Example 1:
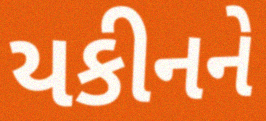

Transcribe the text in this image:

યકીનને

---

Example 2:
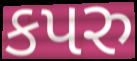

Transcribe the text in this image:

કપરુ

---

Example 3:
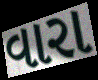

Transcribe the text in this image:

વારા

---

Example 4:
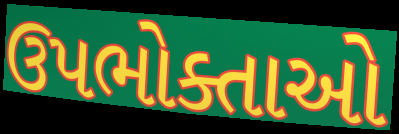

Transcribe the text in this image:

ઉપભોક્તાઓ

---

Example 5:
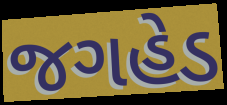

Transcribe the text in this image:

જગહેડ